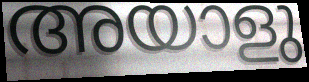
അയാളു